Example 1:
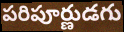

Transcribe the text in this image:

పరిపూర్ణుడగు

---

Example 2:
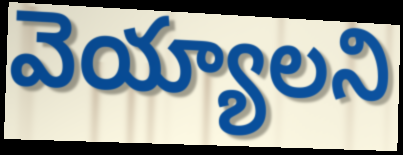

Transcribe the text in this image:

వెయ్యాలని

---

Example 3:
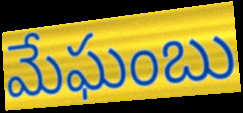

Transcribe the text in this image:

మేఘంబు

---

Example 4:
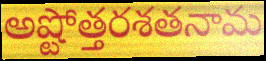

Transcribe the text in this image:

అష్టోత్తరశతనామ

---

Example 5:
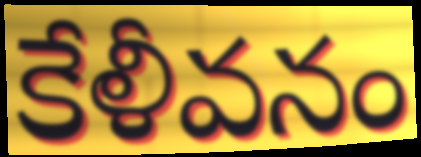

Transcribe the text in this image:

కేళీవనం